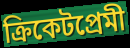
ক্রিকেটপ্রেমী